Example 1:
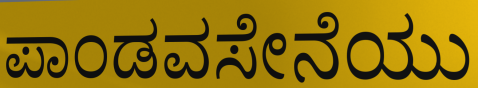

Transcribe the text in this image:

ಪಾಂಡವಸೇನೆಯು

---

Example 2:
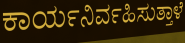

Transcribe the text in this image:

ಕಾರ್ಯನಿರ್ವಹಿಸುತ್ತಾಳೆ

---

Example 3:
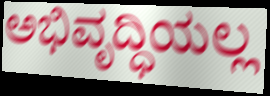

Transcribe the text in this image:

ಅಭಿವೃದ್ಧಿಯಲ್ಲ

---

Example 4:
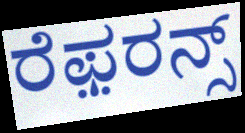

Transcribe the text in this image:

ರೆಫ಼ರನ್ಸ್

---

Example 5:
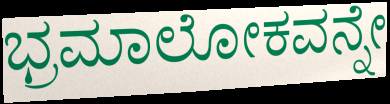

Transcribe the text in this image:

ಭ್ರಮಾಲೋಕವನ್ನೇ